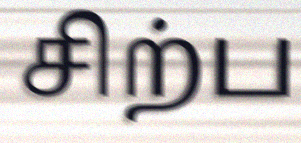
சிற்ப